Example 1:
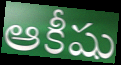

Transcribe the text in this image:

ఆకీషు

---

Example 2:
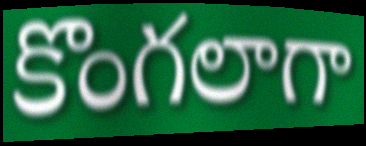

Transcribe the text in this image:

కొంగలాగా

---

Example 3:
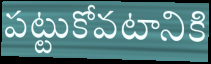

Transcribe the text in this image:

పట్టుకోవటానికి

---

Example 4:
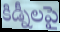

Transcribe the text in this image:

కిడ్నీలపై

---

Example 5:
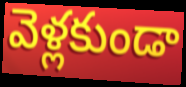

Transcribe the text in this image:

వెళ్లకుండా